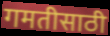
गमतीसाठी